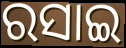
ରସାଇ